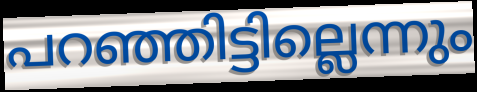
പറഞ്ഞിട്ടില്ലെന്നും